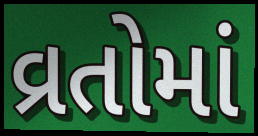
વ્રતોમાં